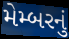
મેમ્બરનું